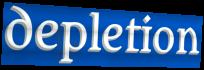
depletion